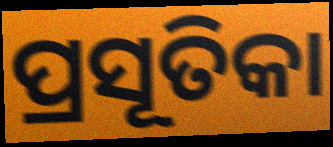
ପ୍ରସୂତିକା